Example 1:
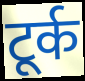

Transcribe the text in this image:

टूर्क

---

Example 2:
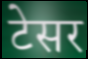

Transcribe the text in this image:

टेसर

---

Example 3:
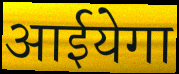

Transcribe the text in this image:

आईयेगा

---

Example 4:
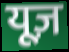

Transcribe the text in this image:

यूज़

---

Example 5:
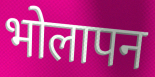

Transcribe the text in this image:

भोलापन